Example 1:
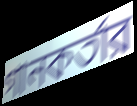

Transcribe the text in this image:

গানকর্তার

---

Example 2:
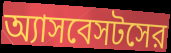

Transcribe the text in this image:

অ্যাসবেসটসের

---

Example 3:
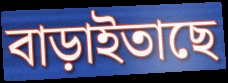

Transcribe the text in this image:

বাড়াইতাছে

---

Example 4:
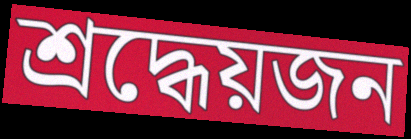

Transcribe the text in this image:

শ্রদ্ধেয়জন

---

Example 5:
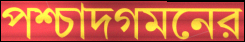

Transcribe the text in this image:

পশ্চাদগমনের